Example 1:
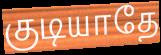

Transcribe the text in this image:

குடியாதே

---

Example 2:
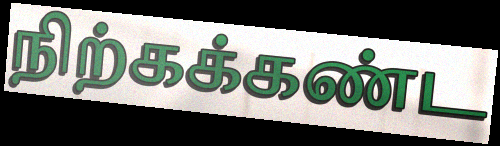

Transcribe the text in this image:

நிற்கக்கண்ட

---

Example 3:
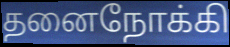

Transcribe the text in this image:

தனைநோக்கி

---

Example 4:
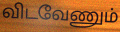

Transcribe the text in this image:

விடவேணும்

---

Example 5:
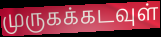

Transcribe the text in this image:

முருகக்கடவுள்